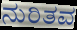
ನುರಿತವ